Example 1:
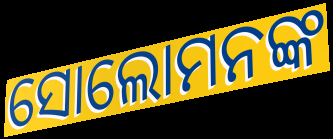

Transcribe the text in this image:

ସୋଲୋମନଙ୍କ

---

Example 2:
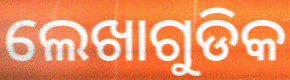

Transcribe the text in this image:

ଲେଖାଗୁଡିକ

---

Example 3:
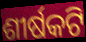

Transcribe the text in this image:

ଶୀର୍ଷକଟି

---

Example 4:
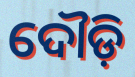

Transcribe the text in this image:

ଦୌଡ଼ି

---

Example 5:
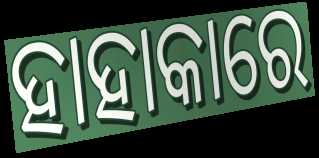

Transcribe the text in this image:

ହାହାକାରେ